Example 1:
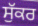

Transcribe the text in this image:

ਸੁੱਕਰ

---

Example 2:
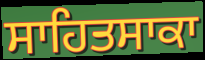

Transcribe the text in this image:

ਸਾਹਿਤਸਾਕਾ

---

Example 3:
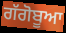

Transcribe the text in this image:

ਗੱਗੋਬੂਆ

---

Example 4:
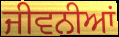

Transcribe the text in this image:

ਜੀਵਨੀਆਂ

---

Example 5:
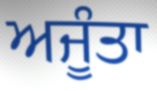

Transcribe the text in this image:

ਅਜੂੰਤਾ